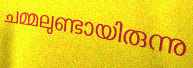
ചമ്മലുണ്ടായിരുന്നു